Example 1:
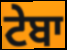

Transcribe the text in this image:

ਟੇਬਾ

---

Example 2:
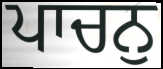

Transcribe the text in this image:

ਪਾਚਨੁ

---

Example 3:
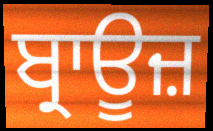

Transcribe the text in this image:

ਬ੍ਰਾਊਜ਼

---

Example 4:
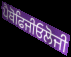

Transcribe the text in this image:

ਪੈਥੋਫਿਜੀਓਲੋਜੀ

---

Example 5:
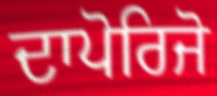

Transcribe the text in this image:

ਦਾਪੋਰਿਜੋ